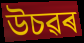
উচৱৰ